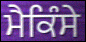
ਮੈਕਿੰਸੇ